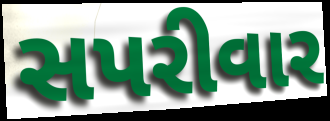
સપરીવાર